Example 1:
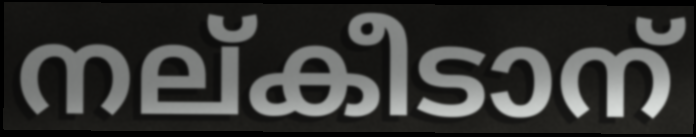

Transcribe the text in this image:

നല്കീടാന്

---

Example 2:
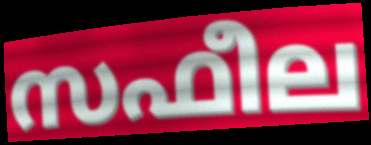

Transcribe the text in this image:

സഫീല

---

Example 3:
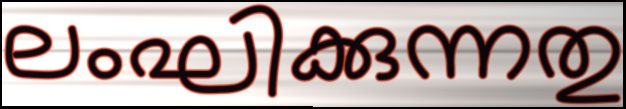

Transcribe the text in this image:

ലംഘിക്കുന്നതു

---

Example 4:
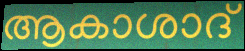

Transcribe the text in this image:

ആകാശാദ്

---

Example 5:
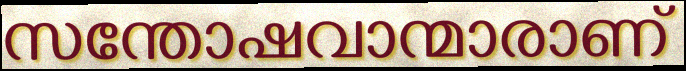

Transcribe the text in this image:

സന്തോഷവാന്മാരാണ്